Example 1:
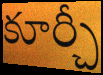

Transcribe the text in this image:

కూర్చీ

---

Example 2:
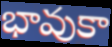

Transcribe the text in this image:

భావుకా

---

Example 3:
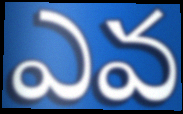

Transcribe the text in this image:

ఎవ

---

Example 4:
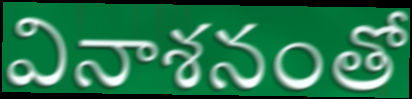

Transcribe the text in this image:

వినాశనంతో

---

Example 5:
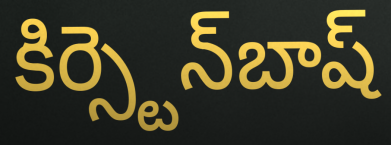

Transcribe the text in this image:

కిర్స్టెన్‌బాష్